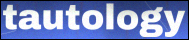
tautology